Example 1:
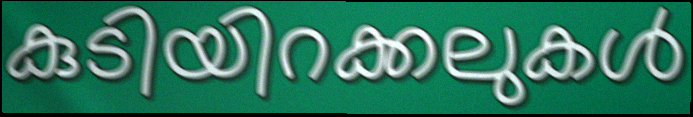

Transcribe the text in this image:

കുടിയിറക്കലുകൾ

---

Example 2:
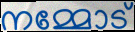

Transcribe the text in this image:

നമ്മോട്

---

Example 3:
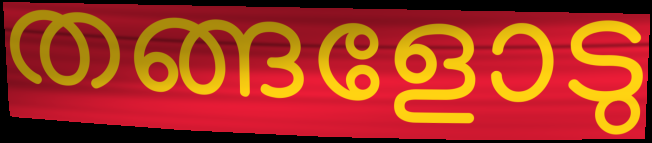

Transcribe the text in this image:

തങ്ങളോടു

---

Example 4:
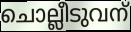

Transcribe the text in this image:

ചൊല്ലീടുവന്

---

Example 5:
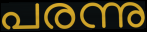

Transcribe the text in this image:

പരന്നു